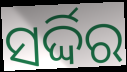
ସର୍ଦ୍ଦିର